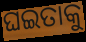
ଘଇତାକୁ